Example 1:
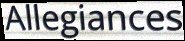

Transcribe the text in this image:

Allegiances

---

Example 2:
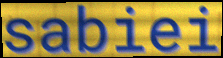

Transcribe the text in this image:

sabiei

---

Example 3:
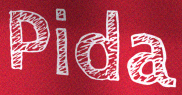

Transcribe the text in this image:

Pida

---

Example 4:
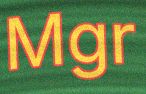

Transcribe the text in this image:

Mgr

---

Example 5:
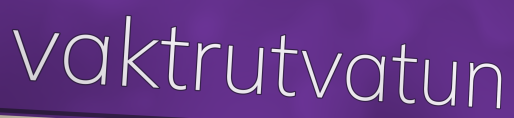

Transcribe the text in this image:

vaktrutvatun